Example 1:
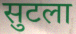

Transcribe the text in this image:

सुटला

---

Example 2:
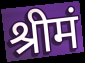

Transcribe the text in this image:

श्रीमं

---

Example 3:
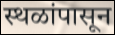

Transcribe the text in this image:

स्थळांपासून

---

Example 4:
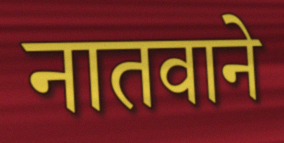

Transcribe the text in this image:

नातवाने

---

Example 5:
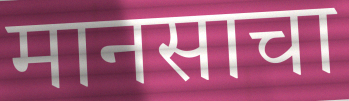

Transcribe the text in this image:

मानसाचा